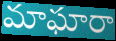
మాఘారా